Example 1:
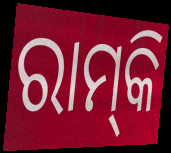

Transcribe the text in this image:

ରାମ୍‌କି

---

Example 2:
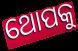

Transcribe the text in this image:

ଥୋପକୁ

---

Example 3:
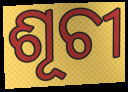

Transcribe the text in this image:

ଶୂଚୀ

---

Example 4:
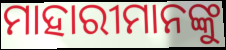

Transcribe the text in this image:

ମାହାରୀମାନଙ୍କୁ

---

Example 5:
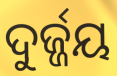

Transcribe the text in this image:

ଦୁର୍ଜ୍ଜୟ